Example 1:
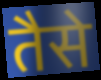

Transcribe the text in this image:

तैसे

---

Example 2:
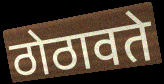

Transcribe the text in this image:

ठोठावते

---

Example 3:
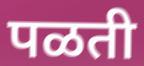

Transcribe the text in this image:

पळती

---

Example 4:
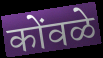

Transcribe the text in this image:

कोंवळे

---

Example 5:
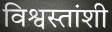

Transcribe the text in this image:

विश्वस्तांशी